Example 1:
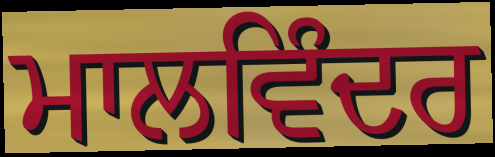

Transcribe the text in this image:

ਮਾਲਵਿੰਦਰ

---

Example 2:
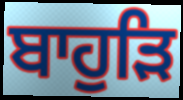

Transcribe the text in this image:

ਬਾਹੁੜਿ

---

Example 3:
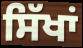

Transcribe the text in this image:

ਸਿੱਖਾਂ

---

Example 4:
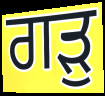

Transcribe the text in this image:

ਗੜੁ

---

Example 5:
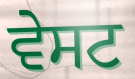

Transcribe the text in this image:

ਵੇਸਟ